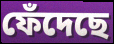
ফেঁদেছে